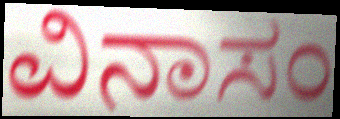
ವಿನಾಸಂ